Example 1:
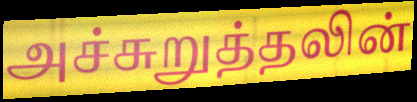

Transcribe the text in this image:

அச்சுறுத்தலின்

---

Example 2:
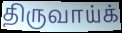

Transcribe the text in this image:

திருவாய்க்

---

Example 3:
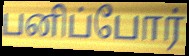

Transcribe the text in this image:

பனிப்போர்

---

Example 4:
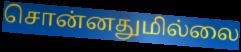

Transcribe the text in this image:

சொன்னதுமில்லை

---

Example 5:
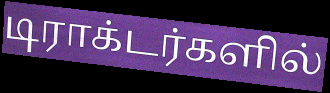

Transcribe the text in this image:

டிராக்டர்களில்